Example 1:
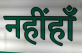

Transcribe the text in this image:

नहींहाँ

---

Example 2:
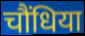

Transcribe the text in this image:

चौंधिया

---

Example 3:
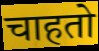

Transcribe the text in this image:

चाहतो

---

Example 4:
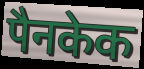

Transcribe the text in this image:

पैनकेक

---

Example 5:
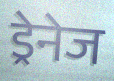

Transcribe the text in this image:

ड्रेनेज